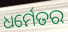
ଧର୍ମେତର